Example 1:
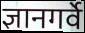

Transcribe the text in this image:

ज्ञानगर्वे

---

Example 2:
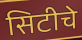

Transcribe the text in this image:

सिटीचे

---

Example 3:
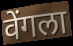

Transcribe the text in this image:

वेंगला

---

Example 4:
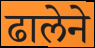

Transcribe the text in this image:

ढालेने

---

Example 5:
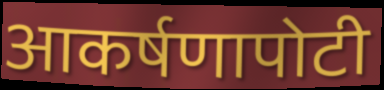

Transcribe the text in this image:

आकर्षणापोटी